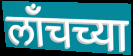
लाँचच्या